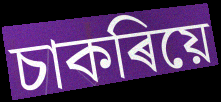
চাকৰিয়ে